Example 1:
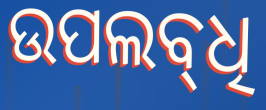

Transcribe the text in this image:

ଉପଲବ୍‌ଧି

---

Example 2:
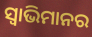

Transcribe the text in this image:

ସ୍ଵାଭିମାନର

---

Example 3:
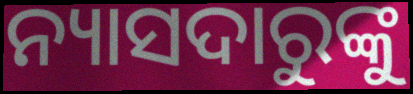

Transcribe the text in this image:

ନ୍ୟାସଦାରୁଙ୍କୁ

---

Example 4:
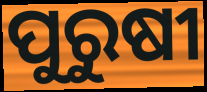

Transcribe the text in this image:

ପୁରୁଷୀ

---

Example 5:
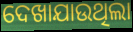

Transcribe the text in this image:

ଦେଖାଯାଉଥିଲା